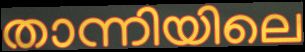
താന്നിയിലെ